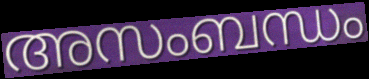
അസംബന്ധം